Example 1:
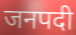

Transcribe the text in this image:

जनपदी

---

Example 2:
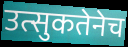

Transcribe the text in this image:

उत्सुकतेनेच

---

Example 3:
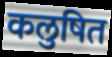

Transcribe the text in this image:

कलुषित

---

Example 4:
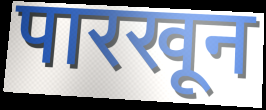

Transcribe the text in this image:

पारखून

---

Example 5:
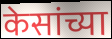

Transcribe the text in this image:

केसांच्या